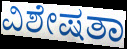
ವಿಶೇಷತಾ